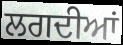
ਲਗਦੀਆਂ